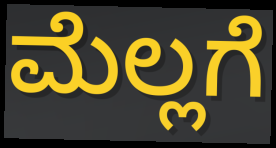
ಮೆಲ್ಲಗೆ